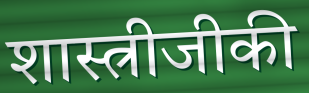
शास्त्रीजीकी